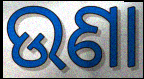
ଉଣା